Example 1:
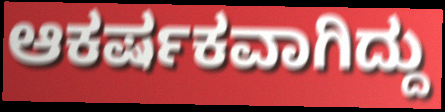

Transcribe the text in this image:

ಆಕರ್ಷಕವಾಗಿದ್ದು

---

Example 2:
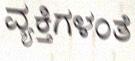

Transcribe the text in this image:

ವ್ಯಕ್ತಿಗಳಂತೆ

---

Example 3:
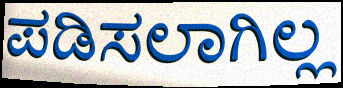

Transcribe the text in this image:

ಪಡಿಸಲಾಗಿಲ್ಲ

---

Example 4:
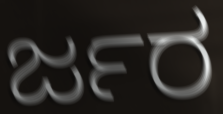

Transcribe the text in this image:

ರ್ಜರ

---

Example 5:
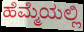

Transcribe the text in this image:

ಹೆಮ್ಮೆಯಲ್ಲಿ